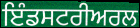
ਇੰਡਸਟਰੀਅਰਲ